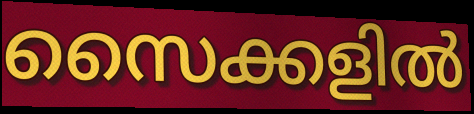
സൈക്കളിൽ